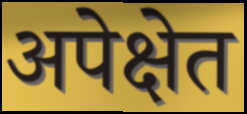
अपेक्षेत